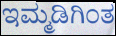
ಇಮ್ಮಡಿಗಿಂತ